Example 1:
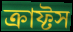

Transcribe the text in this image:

ক্রাফ্টস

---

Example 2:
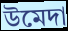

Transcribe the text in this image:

উমেদা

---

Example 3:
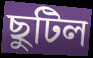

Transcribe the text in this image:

ছুটিল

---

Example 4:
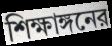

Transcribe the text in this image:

শিক্ষাঙ্গনের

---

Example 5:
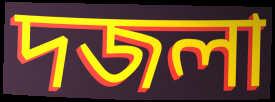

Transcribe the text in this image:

দজলা